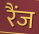
रैंज